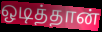
ஒடித்தான்